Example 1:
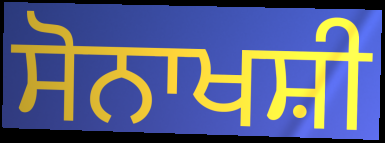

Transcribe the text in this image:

ਸੋਨਾਖਸ਼ੀ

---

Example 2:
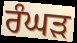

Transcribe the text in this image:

ਰੰਘੜ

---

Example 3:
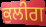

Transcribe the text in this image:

ਕੁਲੀਗ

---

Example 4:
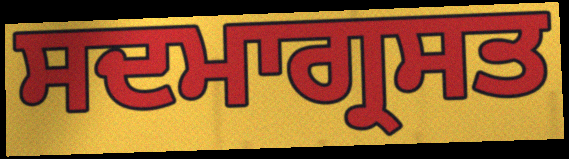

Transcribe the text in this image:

ਸਦਮਾਗ੍ਰਸਤ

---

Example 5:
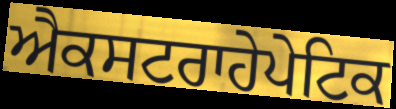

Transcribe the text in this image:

ਐਕਸਟਰਾਹੇਪੇਟਿਕ